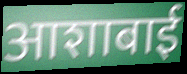
आशाबाई